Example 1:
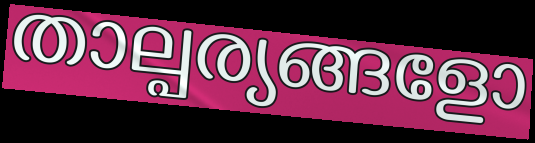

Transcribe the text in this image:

താല്പര്യങ്ങളോ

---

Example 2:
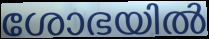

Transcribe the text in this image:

ശോഭയിൽ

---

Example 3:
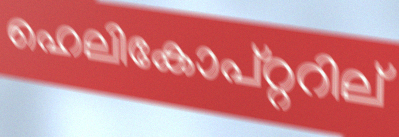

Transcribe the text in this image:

ഹെലികോപ്റ്ററില്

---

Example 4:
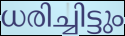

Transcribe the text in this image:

ധരിച്ചിട്ടും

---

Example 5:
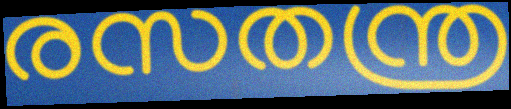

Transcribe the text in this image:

രസതന്ത്ര